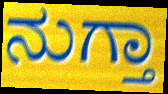
ನುಗ್ತಾ